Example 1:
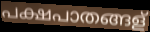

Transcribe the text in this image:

പക്ഷപാതങ്ങള്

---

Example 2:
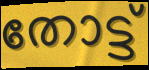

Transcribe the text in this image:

തോട്ട്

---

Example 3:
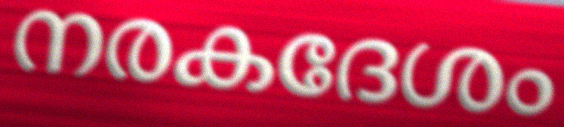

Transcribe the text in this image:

നരകദേശം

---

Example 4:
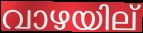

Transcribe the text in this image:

വാഴയില്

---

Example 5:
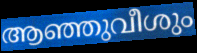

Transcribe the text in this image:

ആഞ്ഞുവീശും